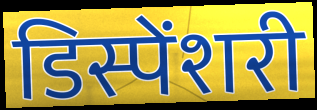
डिस्पेंशरी